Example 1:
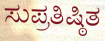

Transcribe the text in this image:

ಸುಪ್ರತಿಷ್ಠಿತ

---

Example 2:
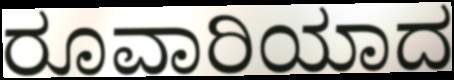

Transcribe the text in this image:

ರೂವಾರಿಯಾದ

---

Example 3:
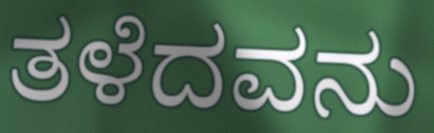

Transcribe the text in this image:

ತಳೆದವನು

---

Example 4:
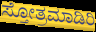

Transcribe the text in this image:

ಸ್ತೋತ್ರಮಾಡಿರಿ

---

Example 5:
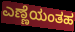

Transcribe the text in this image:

ಎಣ್ಣೆಯಂತಹ